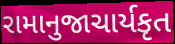
રામાનુજાચાર્યકૃત